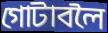
গোটাবলৈ